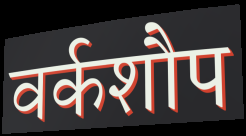
वर्कशौप